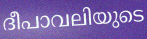
ദീപാവലിയുടെ